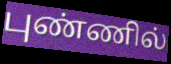
புண்ணில்